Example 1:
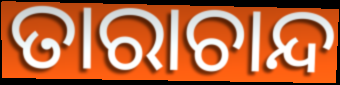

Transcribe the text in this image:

ତାରାଚାନ୍ଦ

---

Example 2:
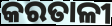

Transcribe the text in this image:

କରତାଳୀ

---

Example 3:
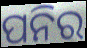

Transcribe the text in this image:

ପନିର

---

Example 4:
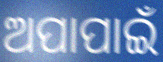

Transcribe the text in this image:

ଅପାପାଇଁ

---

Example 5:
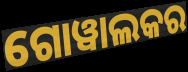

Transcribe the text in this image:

ଗୋୱାଲକର